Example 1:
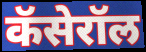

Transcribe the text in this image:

कॅसेरॉल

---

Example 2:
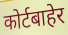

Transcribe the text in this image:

कोर्टबाहेर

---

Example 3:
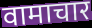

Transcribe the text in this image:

वामाचार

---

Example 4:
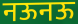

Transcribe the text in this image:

नऊनऊ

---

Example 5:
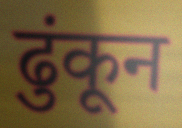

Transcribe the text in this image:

ढुंकून